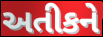
અતીકને